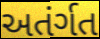
અતંર્ગત